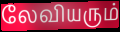
லேவியரும்